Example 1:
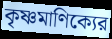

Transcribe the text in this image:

কৃষ্ণমাণিক্যের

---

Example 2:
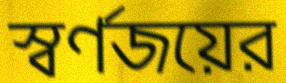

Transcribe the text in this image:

স্বর্ণজয়ের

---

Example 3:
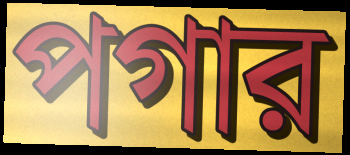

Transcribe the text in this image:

পগার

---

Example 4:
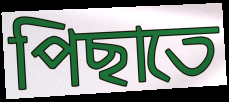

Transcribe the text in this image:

পিছাতে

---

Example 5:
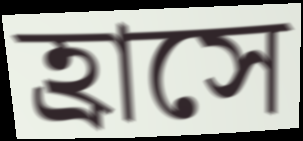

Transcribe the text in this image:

হ্রাসে